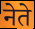
नेते